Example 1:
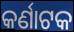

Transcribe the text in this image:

କର୍ଣାଟକ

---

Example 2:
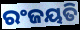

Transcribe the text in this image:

ରଂଜୟତି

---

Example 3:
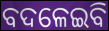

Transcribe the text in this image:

ବଦଳେଇବି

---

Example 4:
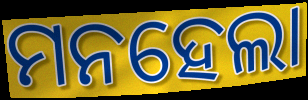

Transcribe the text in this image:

ମନହେଲା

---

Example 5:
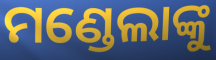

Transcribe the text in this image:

ମଣ୍ଡେଲାଙ୍କୁ